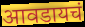
आवडायचं